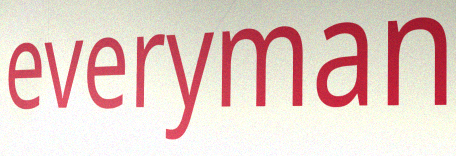
everyman